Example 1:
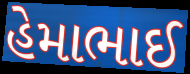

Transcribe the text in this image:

હેમાભાઈ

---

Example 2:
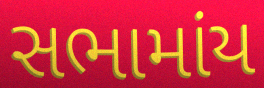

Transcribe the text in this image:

સભામાંય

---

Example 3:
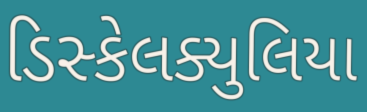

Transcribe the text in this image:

ડિસ્કેલક્યુલિયા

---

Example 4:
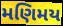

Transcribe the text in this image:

મણિમય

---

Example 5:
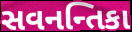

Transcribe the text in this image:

સવનન્તિકા